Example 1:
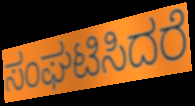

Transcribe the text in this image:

ಸಂಘಟಿಸಿದರೆ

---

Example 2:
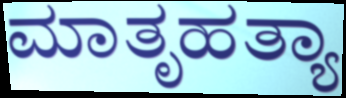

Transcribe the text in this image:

ಮಾತೃಹತ್ಯಾ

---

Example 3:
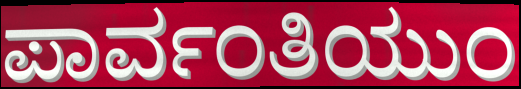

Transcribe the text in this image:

ಪಾರ್ವಂತಿಯುಂ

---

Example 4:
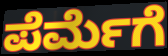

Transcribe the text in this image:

ಪೆರ್ಮೆಗೆ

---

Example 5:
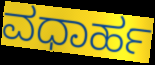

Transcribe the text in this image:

ವಧಾರ್ಹ